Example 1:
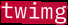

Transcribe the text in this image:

twimg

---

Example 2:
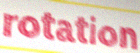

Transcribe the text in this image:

rotation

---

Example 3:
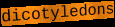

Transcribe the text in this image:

dicotyledons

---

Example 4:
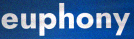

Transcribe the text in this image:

euphony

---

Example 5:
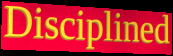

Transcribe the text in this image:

Disciplined